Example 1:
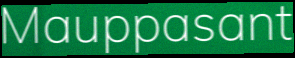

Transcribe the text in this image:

Mauppasant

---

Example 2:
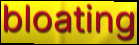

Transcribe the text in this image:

bloating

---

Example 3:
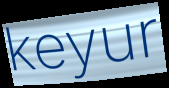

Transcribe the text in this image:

keyur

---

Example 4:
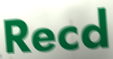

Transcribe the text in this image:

Recd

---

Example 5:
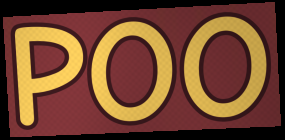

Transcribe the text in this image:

POO